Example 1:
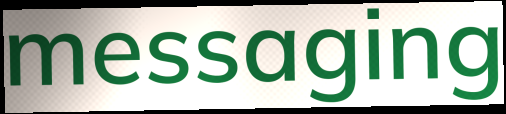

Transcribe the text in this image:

messaging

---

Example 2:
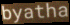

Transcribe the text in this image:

byatha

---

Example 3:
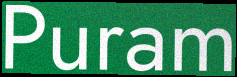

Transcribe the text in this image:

Puram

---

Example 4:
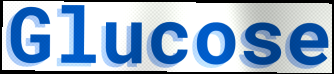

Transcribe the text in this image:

Glucose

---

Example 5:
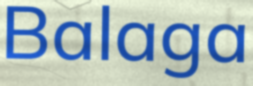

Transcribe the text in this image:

Balaga